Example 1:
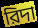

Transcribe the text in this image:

রিদা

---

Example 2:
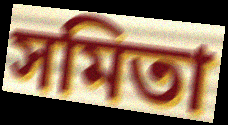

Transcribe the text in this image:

সমিতা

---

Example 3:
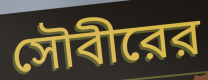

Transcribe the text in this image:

সৌবীরের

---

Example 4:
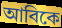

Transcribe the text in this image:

আবিকে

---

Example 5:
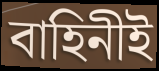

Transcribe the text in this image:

বাহিনীই